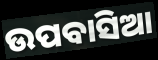
ଉପବାସିଆ